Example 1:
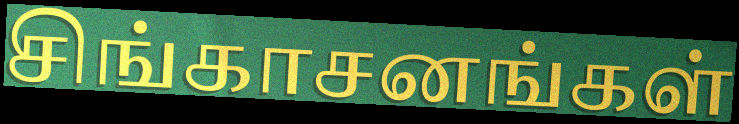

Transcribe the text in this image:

சிங்காசனங்கள்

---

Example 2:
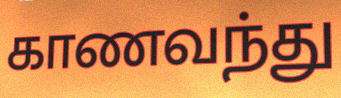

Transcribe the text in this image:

காணவந்து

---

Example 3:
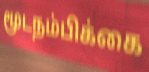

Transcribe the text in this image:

மூடநம்பிக்கை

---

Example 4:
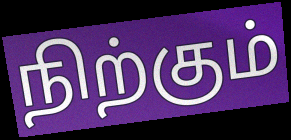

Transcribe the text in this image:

நிற்கும்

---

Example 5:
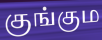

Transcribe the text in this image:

குங்கும